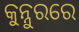
କୁନ୍ନୁରରେ